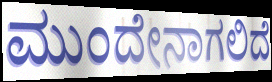
ಮುಂದೇನಾಗಲಿದೆ